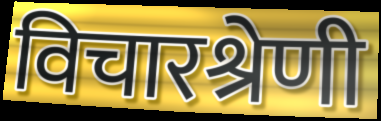
विचारश्रेणी